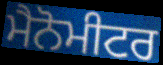
ਮੈਨੋਮੀਟਰ